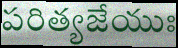
పరిత్యజేయుః